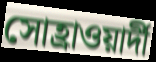
সোহ্রাওয়ার্দী